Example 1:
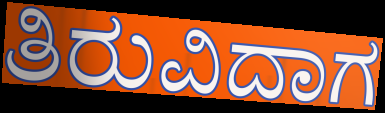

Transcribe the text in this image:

ತಿರುವಿದಾಗ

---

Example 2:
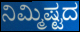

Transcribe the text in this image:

ನಿಮ್ಮಿಷ್ಟದ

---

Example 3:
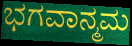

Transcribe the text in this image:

ಭಗವಾನ್ಮಮ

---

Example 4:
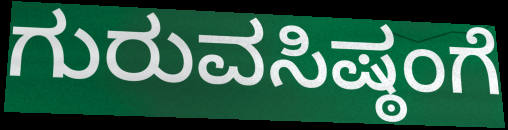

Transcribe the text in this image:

ಗುರುವಸಿಷ್ಠಂಗೆ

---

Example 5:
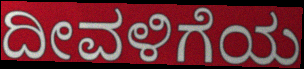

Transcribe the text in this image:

ದೀವಳಿಗೆಯ